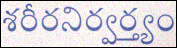
శరీరనిర్వర్త్యం